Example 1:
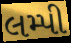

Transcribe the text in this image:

લમ્પી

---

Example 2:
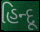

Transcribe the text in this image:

હિન્દૂ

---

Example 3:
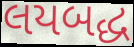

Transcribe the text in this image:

લયબદ્ધ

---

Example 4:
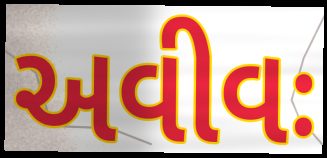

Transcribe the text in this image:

અવીવઃ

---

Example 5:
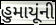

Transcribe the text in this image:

હુમાયૂંની